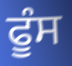
ਫੂੰਸ